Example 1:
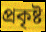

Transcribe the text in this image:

প্রকৃষ্ট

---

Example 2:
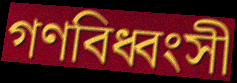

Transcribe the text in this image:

গণবিধ্বংসী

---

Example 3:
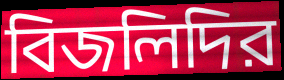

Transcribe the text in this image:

বিজলিদির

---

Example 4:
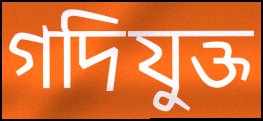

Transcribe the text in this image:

গদিযুক্ত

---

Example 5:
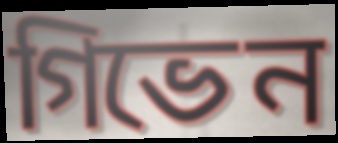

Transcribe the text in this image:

গিভেন